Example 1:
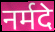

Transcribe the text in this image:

नर्मदे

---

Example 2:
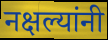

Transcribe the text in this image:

नक्षल्यांनी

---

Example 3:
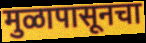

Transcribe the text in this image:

मुळापासूनचा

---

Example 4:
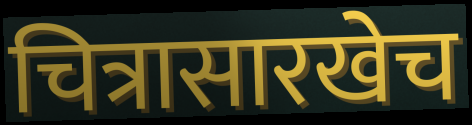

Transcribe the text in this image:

चित्रासारखेच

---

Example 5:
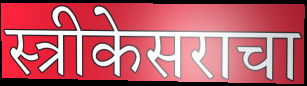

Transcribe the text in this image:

स्त्रीकेसराचा